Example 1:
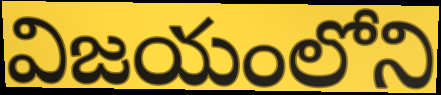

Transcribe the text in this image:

విజయంలోని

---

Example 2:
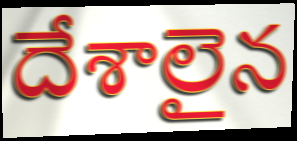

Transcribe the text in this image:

దేశాలైన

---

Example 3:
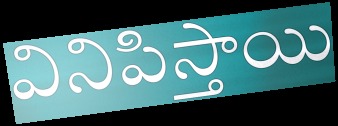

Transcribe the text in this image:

వినిపిస్తాయి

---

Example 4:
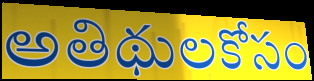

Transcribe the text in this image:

అతిథులకోసం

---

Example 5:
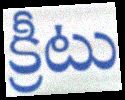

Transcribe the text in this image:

క్రీటు